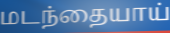
மடந்தையாய்